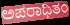
ಅಪರಾಧಿತಂ